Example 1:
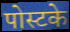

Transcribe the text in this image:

पोस्टके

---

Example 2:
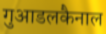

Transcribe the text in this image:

गुआडलकैनाल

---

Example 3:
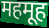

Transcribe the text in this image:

महमूह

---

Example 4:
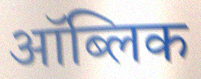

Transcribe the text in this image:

ऑब्लिक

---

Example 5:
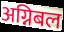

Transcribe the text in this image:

अग्निबल